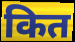
कित